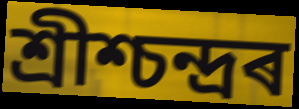
শ্ৰীশ্চন্দ্ৰৰ